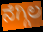
ನೆಗ್ಗಿಲ